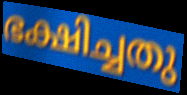
ഭക്ഷിച്ചതു